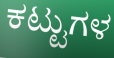
ಕಟ್ಟುಗಳ